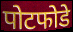
पोटफोडे